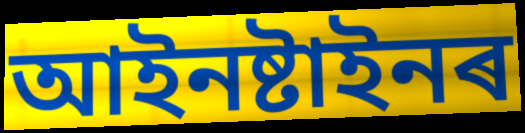
আইনষ্টাইনৰ